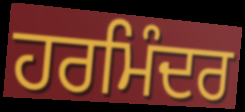
ਹਰਮਿੰਦਰ